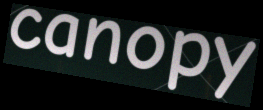
canopy